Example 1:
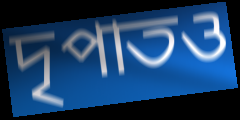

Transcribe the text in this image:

দৃপাতও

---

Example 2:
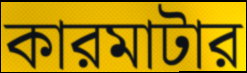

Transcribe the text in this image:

কারমাটার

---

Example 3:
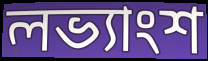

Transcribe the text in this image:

লভ্যাংশ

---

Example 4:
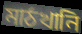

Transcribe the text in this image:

মাঠখানি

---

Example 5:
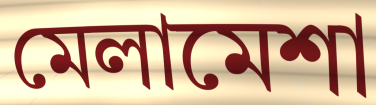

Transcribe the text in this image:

মেলামেশা